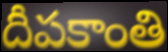
దీపకాంతి